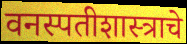
वनस्पतीशास्त्राचे